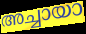
അച്ചായാ